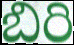
బిరి